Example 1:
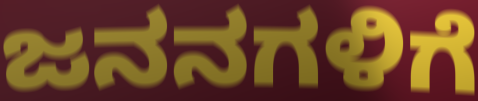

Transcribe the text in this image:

ಜನನಗಳಿಗೆ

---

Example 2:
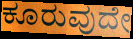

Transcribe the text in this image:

ಕೂರುವುದೇ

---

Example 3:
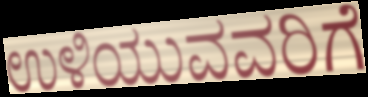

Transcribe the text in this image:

ಉಳಿಯುವವರಿಗೆ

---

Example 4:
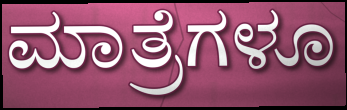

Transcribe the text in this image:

ಮಾತ್ರೆಗಳೂ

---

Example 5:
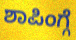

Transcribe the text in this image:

ಶಾಪಿಂಗ್ಗೆ